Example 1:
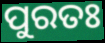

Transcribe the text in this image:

ପୁରତଃ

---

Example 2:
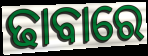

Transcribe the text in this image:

ଢାବାରେ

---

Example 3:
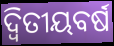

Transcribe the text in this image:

ଦ୍ୱିତୀୟବର୍ଷ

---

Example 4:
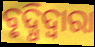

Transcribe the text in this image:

ବୃଦ୍ଧିଦ୍ୱାରା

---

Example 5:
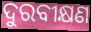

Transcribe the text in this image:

ଦୁରବୀକ୍ଷଣ